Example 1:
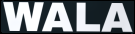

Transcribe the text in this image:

WALA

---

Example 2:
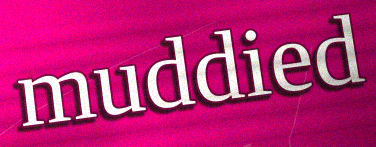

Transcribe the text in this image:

muddied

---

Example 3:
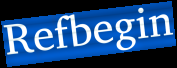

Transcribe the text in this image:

Refbegin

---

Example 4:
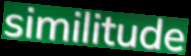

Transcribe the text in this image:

similitude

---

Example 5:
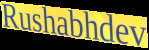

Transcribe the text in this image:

Rushabhdev